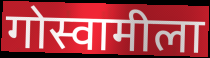
गोस्वामीला